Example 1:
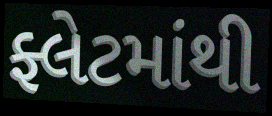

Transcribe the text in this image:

ફ્લેટમાંથી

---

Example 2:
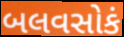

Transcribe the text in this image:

બલવસોકં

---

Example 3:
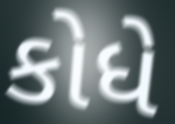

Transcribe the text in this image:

કોધે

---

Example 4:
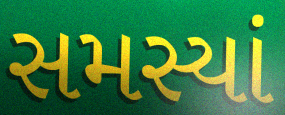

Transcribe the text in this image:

સમસ્યાં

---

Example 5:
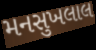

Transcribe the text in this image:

મનસુખલાલ